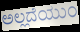
ಅಲ್ಲದೆಯುಂ